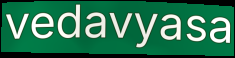
vedavyasa